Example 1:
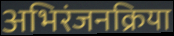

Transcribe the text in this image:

अभिरंजनक्रिया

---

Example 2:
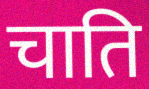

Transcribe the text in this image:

चाति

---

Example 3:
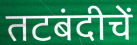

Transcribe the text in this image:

तटबंदीचें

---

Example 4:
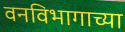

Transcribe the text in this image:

वनविभागाच्या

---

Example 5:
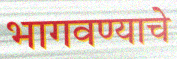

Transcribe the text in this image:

भागवण्याचे